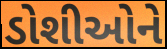
ડોશીઓને